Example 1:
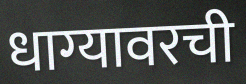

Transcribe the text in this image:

धाग्यावरची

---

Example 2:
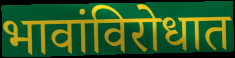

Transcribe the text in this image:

भावांविरोधात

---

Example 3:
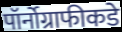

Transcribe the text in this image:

पॉर्नोग्राफीकडे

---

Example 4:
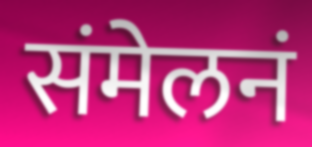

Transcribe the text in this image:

संमेलनं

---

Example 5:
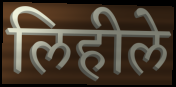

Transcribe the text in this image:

लिहीले